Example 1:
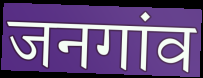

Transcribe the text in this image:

जनगांव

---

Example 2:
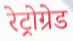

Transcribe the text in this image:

रेट्रोग्रेड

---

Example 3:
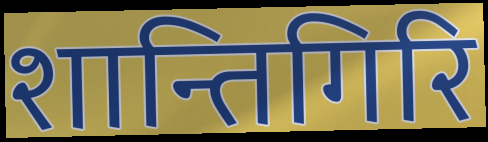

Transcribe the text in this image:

शान्तिगिरि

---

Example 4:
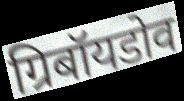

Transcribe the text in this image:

ग्रिबॉयडोव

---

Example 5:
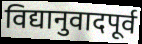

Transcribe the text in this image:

विद्यानुवादपूर्व